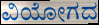
ವಿಯೋಗದ